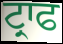
ਟ੍ਰਾਫ